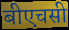
बीएचसी